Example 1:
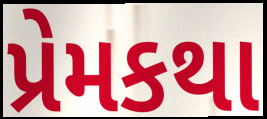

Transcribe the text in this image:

પ્રેમકથા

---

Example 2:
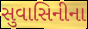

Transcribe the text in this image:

સુવાસિનીના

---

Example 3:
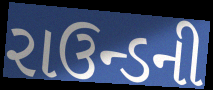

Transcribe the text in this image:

રાઉન્ડની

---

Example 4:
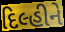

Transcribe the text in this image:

દિલ્હીને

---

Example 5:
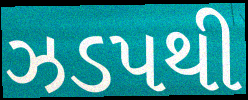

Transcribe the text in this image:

ઝડપથી